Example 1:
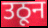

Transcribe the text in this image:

उठून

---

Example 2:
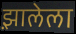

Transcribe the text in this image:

झ़ालेला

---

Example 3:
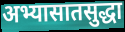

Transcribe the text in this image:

अभ्यासातसुद्धा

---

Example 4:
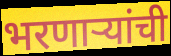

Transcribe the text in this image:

भरणाऱ्यांची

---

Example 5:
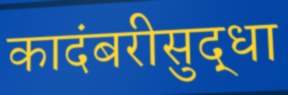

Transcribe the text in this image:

कादंबरीसुद्धा